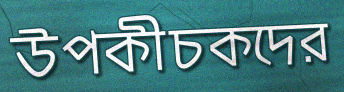
উপকীচকদের